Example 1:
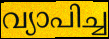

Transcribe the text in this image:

വ്യാപിച്ച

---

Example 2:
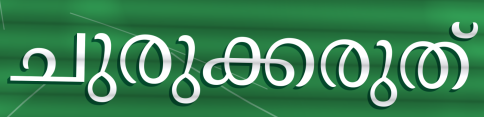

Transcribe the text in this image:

ചുരുക്കരുത്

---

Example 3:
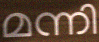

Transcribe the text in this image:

മന്നി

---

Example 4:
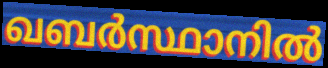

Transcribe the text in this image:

ഖബർസ്ഥാനിൽ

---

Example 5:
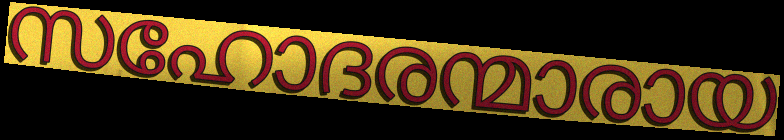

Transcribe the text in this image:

സഹോദരന്മാരായ